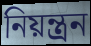
নিয়ন্ত্ৰন